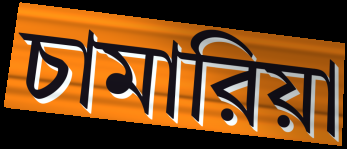
চামারিয়া